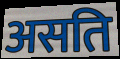
असति